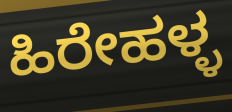
ಹಿರೇಹಳ್ಳ